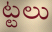
ట్టలు